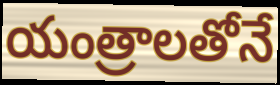
యంత్రాలతోనే